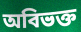
অবিভক্ত